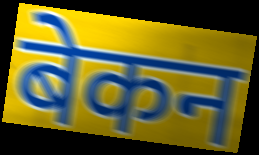
बेकन